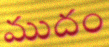
ముదం